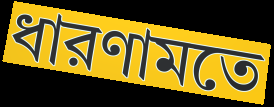
ধারণামতে